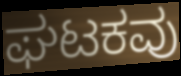
ಘಟಕವು